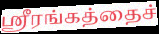
ஸ்ரீரங்கத்தைச்